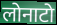
लोनाटो